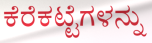
ಕೆರೆಕಟ್ಟೆಗಳನ್ನು